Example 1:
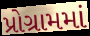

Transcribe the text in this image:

પ્રોગ્રામમાં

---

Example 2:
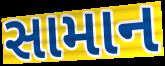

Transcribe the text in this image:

સામાન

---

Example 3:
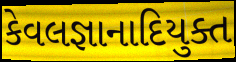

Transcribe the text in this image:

કેવલજ્ઞાનાદિયુક્ત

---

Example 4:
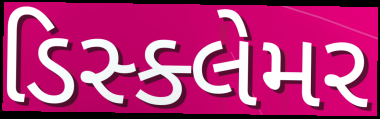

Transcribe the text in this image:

ડિસ્ક્લેમર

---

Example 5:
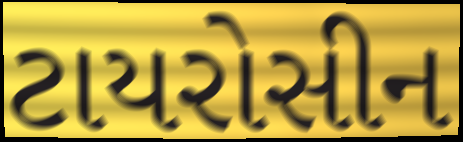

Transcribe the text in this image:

ટાયરોસીન